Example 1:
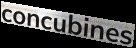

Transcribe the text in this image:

concubines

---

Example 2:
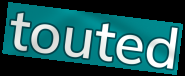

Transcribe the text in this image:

touted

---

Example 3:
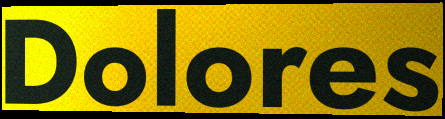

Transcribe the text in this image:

Dolores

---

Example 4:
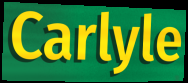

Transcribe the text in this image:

Carlyle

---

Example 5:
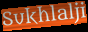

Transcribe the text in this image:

Sukhlalji